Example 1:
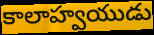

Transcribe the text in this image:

కాలాహ్వయుడు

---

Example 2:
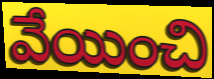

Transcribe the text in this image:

వేయించి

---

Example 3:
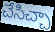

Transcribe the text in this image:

చేసిచ్చా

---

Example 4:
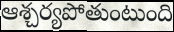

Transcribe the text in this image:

ఆశ్చర్యపోతుంటుంది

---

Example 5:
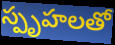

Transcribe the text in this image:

స్పృహలతో